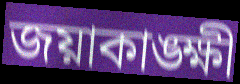
জয়াকাঙ্ক্ষী